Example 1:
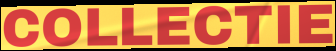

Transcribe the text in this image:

COLLECTIE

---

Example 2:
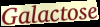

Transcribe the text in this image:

Galactose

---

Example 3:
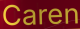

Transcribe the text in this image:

Caren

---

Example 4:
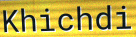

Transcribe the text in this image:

Khichdi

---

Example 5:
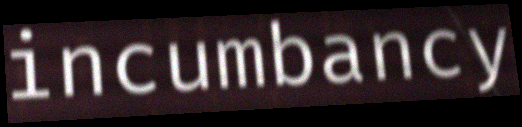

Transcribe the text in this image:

incumbancy